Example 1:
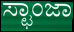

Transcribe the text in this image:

ಸ್ಟಾಂಜಾ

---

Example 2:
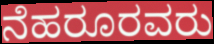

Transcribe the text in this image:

ನೆಹರೂರವರು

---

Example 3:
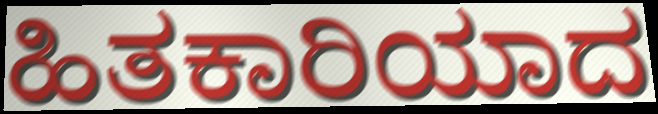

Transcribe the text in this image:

ಹಿತಕಾರಿಯಾದ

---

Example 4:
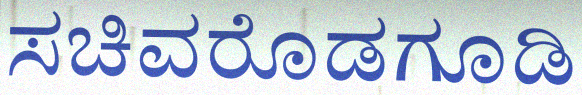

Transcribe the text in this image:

ಸಚಿವರೊಡಗೂಡಿ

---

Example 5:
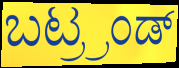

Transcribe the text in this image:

ಬಟ್ರ್ರಂಡ್